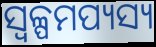
ସ୍ୱଳ୍ପମପ୍ୟସ୍ୟ